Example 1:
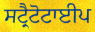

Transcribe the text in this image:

ਸਟ੍ਰੈਟੋਟਾਈਪ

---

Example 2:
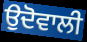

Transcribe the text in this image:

ਉਦੋਵਾਲੀ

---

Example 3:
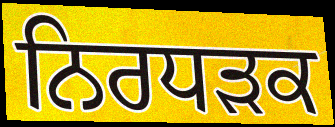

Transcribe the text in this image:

ਨਿਰਧੜਕ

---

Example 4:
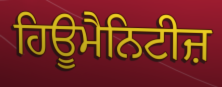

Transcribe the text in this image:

ਹਿਊਮੈਨਿਟੀਜ਼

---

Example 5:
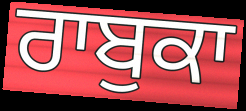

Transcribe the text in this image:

ਰਾਬੁਕਾ